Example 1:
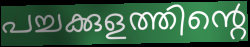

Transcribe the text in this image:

പച്ചക്കുളത്തിന്റെ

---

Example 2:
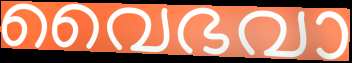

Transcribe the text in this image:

വൈഭവാ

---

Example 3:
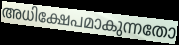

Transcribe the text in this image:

അധിക്ഷേപമാകുന്നതോ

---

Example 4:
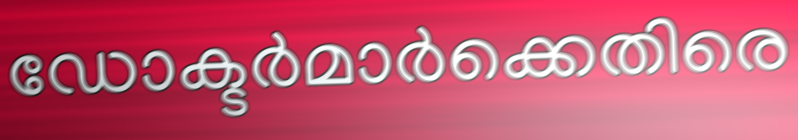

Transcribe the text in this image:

ഡോക്ടർമാർക്കെതിരെ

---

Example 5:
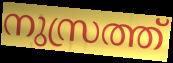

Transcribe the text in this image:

നുസ്രത്ത്